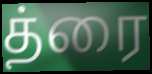
த்ரை